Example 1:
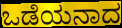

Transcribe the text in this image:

ಒಡೆಯನಾದ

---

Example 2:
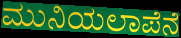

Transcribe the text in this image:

ಮುನಿಯಲಾಪೆನೆ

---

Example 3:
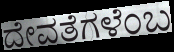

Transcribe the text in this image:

ದೇವತೆಗಳೆಂಬ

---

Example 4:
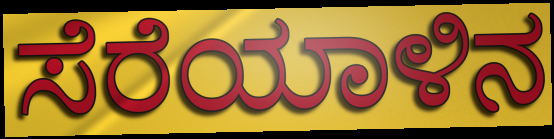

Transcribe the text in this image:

ಸೆರೆಯಾಳಿನ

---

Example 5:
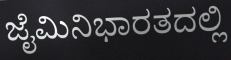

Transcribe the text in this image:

ಜೈಮಿನಿಭಾರತದಲ್ಲಿ